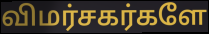
விமர்சகர்களே